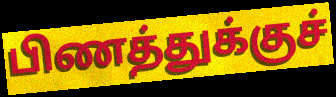
பிணத்துக்குச்